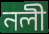
নলী